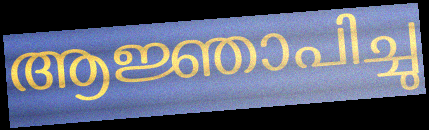
ആജ്ഞാപിച്ചു